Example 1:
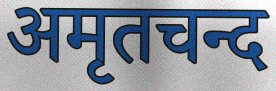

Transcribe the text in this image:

अमृतचन्द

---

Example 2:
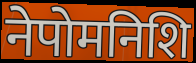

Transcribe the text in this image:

नेपोमनिशि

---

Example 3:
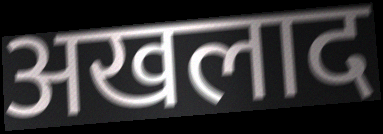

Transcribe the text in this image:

अखलाद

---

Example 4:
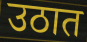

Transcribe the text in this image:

उठात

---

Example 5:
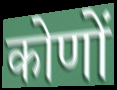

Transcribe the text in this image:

कोणों